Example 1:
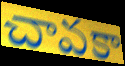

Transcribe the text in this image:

చావకా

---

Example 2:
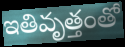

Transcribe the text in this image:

ఇతివృత్తంతో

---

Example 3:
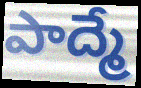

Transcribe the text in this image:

పాద్మే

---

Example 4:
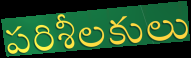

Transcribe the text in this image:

పరిశీలకులు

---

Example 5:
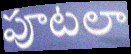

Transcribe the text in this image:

పూటలా